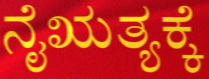
ನೈಋತ್ಯಕ್ಕೆ